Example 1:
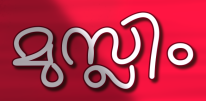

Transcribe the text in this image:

മുസ്ലിം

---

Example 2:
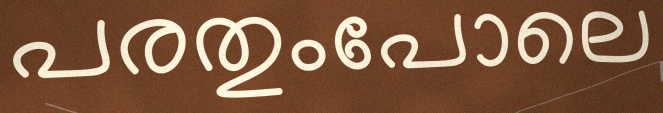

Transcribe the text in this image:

പരതുംപോലെ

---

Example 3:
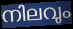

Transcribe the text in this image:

നിലവും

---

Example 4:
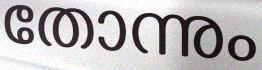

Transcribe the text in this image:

തോന്നും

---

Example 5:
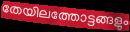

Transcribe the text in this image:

തേയിലത്തോട്ടങ്ങളും